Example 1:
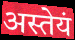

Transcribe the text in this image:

अस्तेयं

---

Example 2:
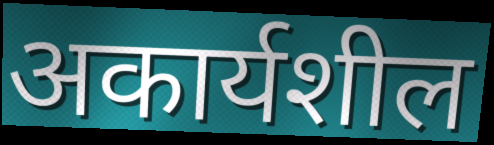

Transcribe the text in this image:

अकार्यशील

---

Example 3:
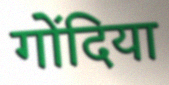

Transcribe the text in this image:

गोंदिया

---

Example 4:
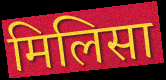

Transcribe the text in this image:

मिलिसा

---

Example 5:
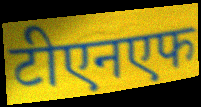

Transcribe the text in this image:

टीएनएफ